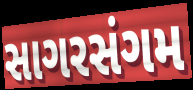
સાગરસંગમ